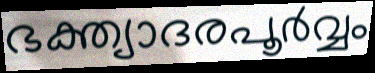
ഭക്ത്യാദരപൂർവ്വം